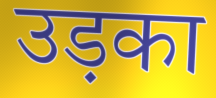
उड़का